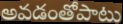
అవడంతోపాటు